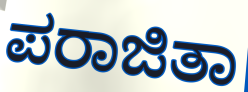
ಪರಾಜಿತಾ